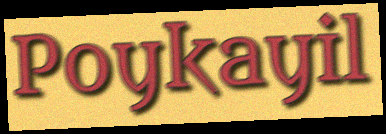
Poykayil